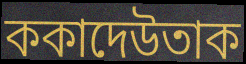
ককাদেউতাক